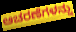
ಆಚರಣೆಗಳನ್ನು